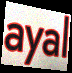
ayal